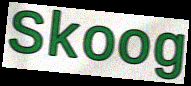
Skoog